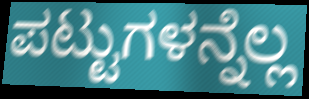
ಪಟ್ಟುಗಳನ್ನೆಲ್ಲ